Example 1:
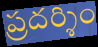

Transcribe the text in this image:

ప్రదర్శిం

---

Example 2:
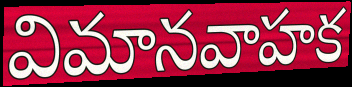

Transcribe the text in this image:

విమానవాహక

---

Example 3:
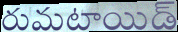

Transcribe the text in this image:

రుమటాయిడ్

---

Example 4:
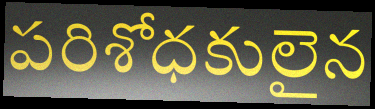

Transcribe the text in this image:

పరిశోధకులైన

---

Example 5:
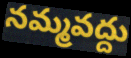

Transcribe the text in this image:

నమ్మవద్దు